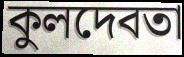
কুলদেবতা